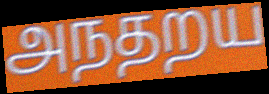
அநதறய